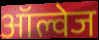
ऑल्वेज